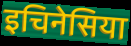
इचिनेसिया